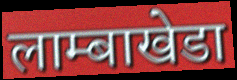
लाम्बाखेडा